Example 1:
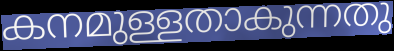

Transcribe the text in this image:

കനമുള്ളതാകുന്നതു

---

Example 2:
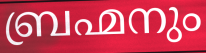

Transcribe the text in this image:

ബ്രഹ്മനും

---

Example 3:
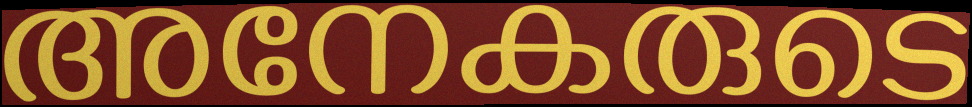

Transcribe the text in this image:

അനേകരുടെ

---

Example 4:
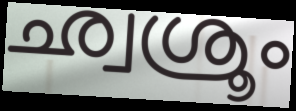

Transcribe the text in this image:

ഛ്വശ്രൂം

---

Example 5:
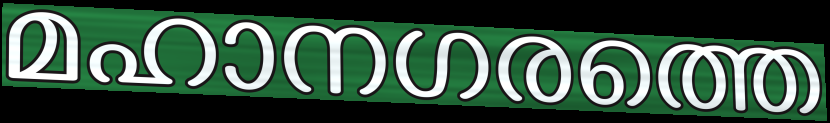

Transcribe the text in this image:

മഹാനഗരത്തെ